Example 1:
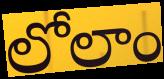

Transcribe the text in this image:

లోలాం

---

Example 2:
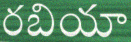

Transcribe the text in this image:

రబియా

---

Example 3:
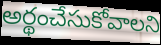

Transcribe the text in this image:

అర్థంచేసుకోవాలని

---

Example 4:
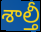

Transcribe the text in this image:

శాల్తీ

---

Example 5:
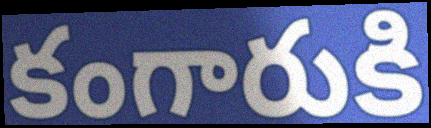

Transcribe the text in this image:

కంగారుకి